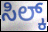
ಸಿಲ್ಕ್